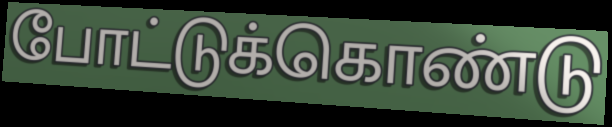
போட்டுக்கொண்டு